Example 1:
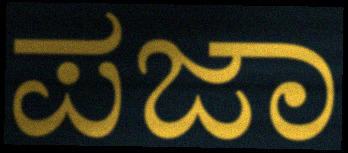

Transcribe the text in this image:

ಪಜಾ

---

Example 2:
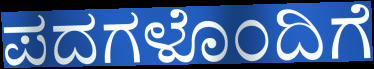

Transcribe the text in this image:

ಪದಗಳೊಂದಿಗೆ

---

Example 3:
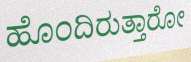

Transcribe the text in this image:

ಹೊಂದಿರುತ್ತಾರೋ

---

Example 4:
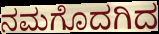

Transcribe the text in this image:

ನಮಗೊದಗಿದ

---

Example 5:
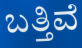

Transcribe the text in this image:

ಬತ್ತಿವೆ